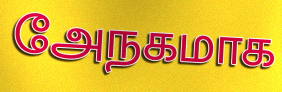
அேநகமாக